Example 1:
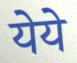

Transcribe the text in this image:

येये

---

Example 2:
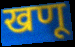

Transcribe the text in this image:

खणू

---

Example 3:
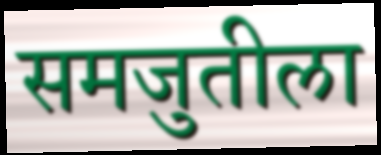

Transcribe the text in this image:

समजुतीला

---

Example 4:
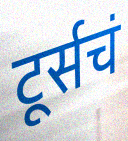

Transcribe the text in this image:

टूर्सचं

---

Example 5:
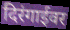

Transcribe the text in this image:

दिरंगाईवर